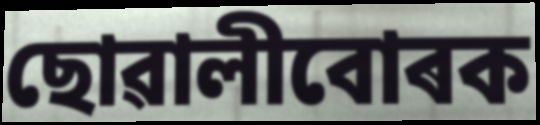
ছোৱালীবোৰক